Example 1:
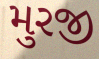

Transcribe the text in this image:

મુરજી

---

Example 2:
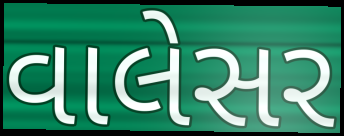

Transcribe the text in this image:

વાલેસર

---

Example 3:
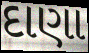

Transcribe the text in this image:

દાણા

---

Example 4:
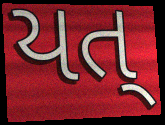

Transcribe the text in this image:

યત્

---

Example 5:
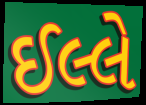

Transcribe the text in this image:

ઈલ્લે